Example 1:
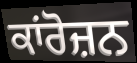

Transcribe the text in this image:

ਕਾਂਰੋਜ਼ਨ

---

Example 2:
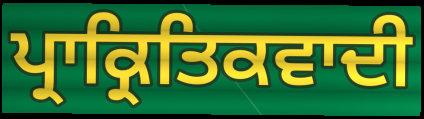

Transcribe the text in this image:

ਪ੍ਰਾਕ੍ਰਿਤਿਕਵਾਦੀ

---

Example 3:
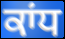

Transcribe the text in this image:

ਕਾਂਧ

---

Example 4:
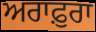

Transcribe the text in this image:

ਅਰਾਫ਼ੁਰਾ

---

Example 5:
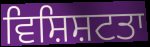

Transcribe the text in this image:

ਵਿਸ਼ਿਸ਼ਟਤਾ